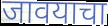
जावयाचा